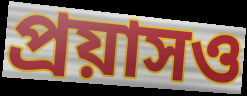
প্রয়াসও